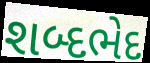
શબ્દભેદ